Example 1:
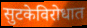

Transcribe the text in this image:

सुटकेविरोधात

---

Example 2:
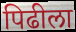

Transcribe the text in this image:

पिढीला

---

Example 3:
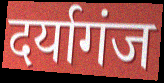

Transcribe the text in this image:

दर्यागंज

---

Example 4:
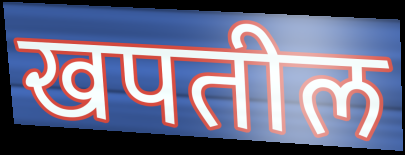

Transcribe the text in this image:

खपतील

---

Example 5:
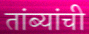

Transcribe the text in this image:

तांब्यांची